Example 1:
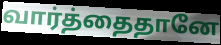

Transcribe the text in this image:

வார்த்தைதானே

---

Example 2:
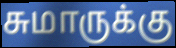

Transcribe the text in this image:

சுமாருக்கு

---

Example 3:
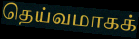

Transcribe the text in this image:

தெய்வமாகக்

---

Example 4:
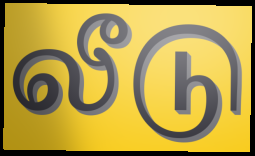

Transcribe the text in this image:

லீடு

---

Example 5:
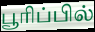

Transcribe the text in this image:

பூரிப்பில்